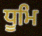
ਧੂਮਿ